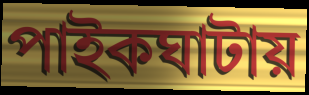
পাইকঘাটায়